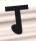
ग्‍